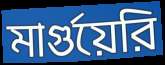
মার্গুয়েরি